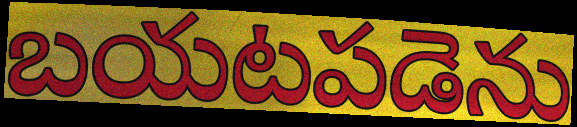
బయటపడెను